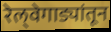
रेल्वेगाड्यांतून